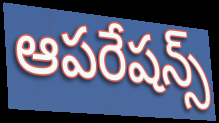
ఆపరేషన్స్